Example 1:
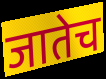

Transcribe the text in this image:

जातेच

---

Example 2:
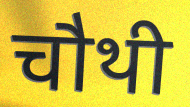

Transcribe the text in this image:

चौथी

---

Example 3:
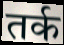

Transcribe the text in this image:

तर्क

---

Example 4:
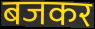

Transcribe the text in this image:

बजकर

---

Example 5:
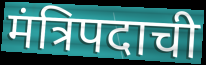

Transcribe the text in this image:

मंत्रिपदाची